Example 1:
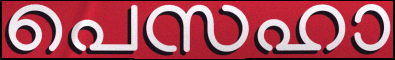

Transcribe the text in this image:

പെസഹാ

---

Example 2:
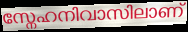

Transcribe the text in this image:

സ്നേഹനിവാസിലാണ്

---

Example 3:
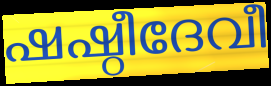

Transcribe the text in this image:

ഷഷ്ഠീദേവീ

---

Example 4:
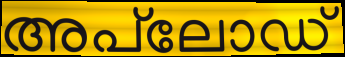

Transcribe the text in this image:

അപ്‌ലോഡ്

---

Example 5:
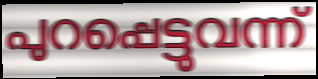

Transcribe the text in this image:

പുറപ്പെട്ടുവന്ന്